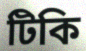
টিকি